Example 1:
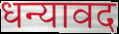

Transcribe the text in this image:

धन्यावद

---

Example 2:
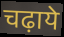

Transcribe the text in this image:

चढ़ाये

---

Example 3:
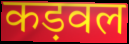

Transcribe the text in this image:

कड़वल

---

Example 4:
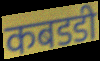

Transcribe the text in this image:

कबडडी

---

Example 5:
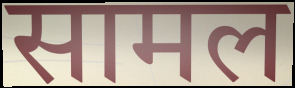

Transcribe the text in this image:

सामल